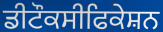
ਡੀਟੌਕਸੀਫਿਕੇਸ਼ਨ